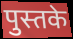
पुस्तके